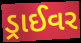
ડ્રાઈવર